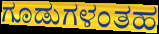
ಗೂಡುಗಳಂತಹ